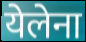
येलेना